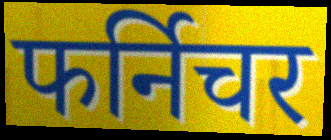
फर्निचर